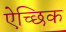
ऐच्छिक